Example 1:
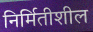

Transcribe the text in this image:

निर्मितीशील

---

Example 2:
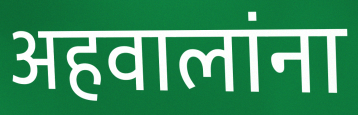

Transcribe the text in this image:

अहवालांना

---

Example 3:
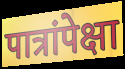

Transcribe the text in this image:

पात्रांपेक्षा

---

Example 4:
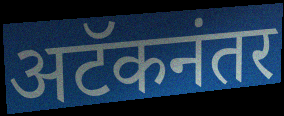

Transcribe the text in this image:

अटॅकनंतर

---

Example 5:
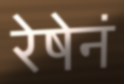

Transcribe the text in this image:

रेषेनं